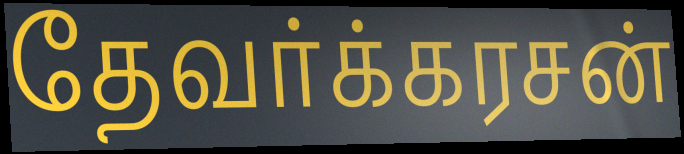
தேவர்க்கரசன்